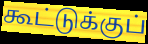
கூட்டுக்குப்